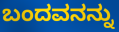
ಬಂದವನನ್ನು